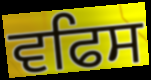
ਵਫਿਸ